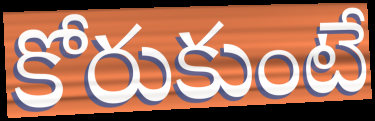
కోరుకుంటే